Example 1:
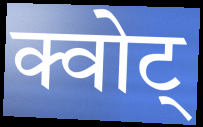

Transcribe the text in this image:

क्वोट्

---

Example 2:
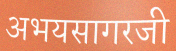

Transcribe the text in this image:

अभयसागरजी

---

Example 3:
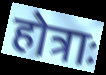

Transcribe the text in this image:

होत्राः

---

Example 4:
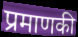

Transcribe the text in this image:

प्रमाणकी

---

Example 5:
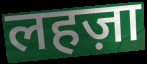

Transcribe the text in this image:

लहज़ा